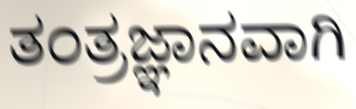
ತಂತ್ರಜ್ಞಾನವಾಗಿ